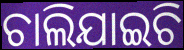
ଚାଲିଯାଇଚି